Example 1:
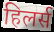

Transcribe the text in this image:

हिलर्स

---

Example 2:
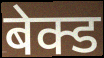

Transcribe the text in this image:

बेक्ड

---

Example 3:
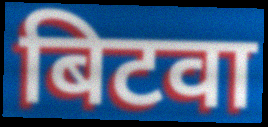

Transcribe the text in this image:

बिटवा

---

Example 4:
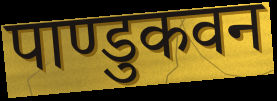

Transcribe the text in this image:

पाण्डुकवन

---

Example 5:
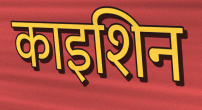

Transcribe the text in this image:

काइशिन